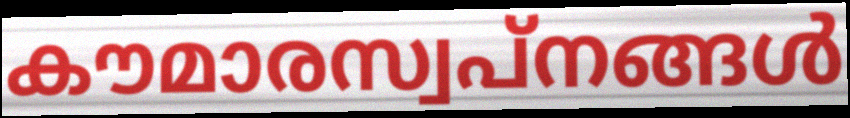
കൗമാരസ്വപ്നങ്ങൾ